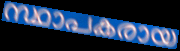
സ്ഥാപകരായ